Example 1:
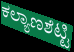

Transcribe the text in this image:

ಕಲ್ಯಾಣಶೆಟ್ಟಿ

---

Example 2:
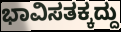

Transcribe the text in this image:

ಭಾವಿಸತಕ್ಕದ್ದು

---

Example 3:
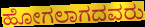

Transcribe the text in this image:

ಹೋಗಲಾಗದವರು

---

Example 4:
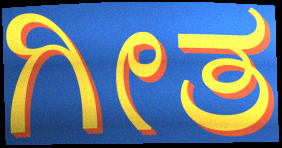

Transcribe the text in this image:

ಗೀತ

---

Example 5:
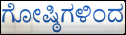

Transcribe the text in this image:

ಗೋಷ್ಠಿಗಳಿಂದ